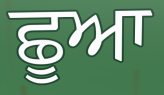
ਛੂਆ